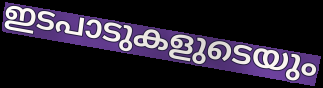
ഇടപാടുകളുടെയും